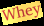
Whey